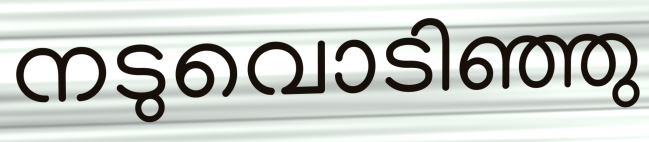
നടുവൊടിഞ്ഞു